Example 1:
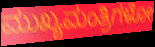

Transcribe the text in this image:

ಮುಖ್ಯಮಂತ್ರಿಗಳೋ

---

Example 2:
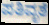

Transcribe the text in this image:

ಪತಿವೃತೆ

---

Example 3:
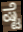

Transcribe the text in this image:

ಷ್ಟೆ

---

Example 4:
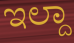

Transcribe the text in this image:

ಇಲ್ದಾ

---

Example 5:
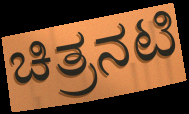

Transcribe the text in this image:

ಚಿತ್ರನಟಿ